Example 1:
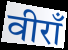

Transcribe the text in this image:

वीराँ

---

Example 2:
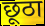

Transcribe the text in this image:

छूठा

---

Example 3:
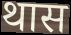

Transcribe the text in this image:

थास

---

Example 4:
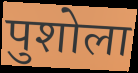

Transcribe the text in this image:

पुशोला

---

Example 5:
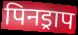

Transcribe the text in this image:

पिनड्राप